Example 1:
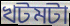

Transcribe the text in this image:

খটমটা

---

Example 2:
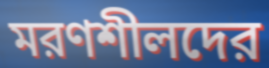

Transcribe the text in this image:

মরণশীলদের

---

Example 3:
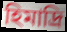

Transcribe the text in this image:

হিমাদ্রি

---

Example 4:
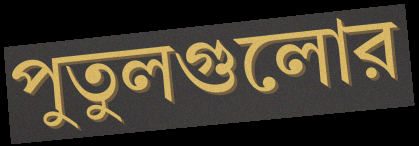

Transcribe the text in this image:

পুতুলগুলোর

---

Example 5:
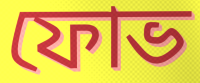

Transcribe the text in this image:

ফোভ